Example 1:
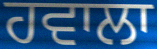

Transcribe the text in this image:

ਹਵਾਲਾ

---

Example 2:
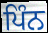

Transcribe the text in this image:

ਪਿੰਨ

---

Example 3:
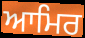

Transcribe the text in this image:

ਆਮਿਰ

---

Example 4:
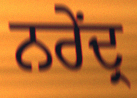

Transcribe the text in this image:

ਨਰੇਂਦ੍ਰ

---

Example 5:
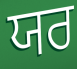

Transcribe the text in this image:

ਯਰ